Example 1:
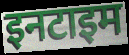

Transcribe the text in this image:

इनटाइम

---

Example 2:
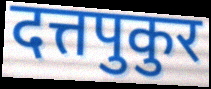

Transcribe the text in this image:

दत्तपुकुर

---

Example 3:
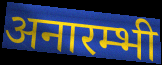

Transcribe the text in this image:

अनारम्भी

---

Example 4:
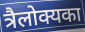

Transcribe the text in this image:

त्रैलोक्यका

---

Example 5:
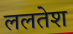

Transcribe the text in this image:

ललतेश